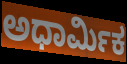
ಅಧಾರ್ಮಿಕ